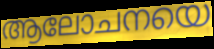
ആലോചനയെ